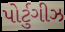
પોર્ટુગીઝ